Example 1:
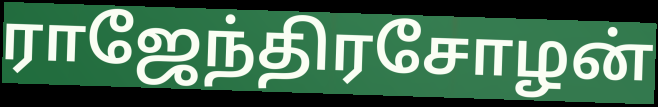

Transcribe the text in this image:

ராஜேந்திரசோழன்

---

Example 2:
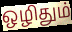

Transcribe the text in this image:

ஒழிதும்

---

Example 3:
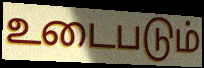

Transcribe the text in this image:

உடைபடும்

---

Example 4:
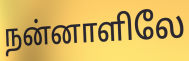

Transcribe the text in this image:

நன்னாளிலே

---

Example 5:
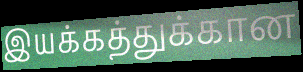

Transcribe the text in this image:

இயக்கத்துக்கான